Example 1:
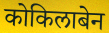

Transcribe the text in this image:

कोकिलाबेन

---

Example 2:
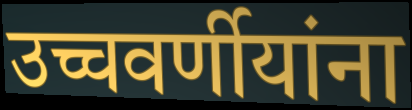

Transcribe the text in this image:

उच्चवर्णीयांना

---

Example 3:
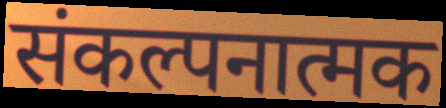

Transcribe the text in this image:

संकल्पनात्मक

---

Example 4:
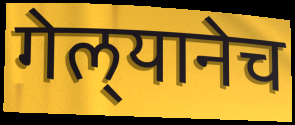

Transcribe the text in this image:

गेल्यानेच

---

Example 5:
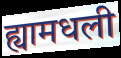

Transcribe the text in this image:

ह्यामधली